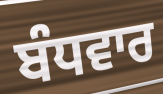
ਬੰਧਵਾਰ